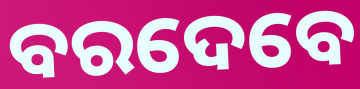
ବରଦେବେ